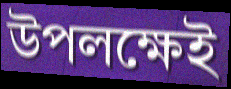
উপলক্ষেই